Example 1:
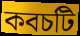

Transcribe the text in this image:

কবচটি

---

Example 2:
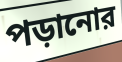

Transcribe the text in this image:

পড়ানোর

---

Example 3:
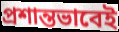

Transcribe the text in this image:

প্রশান্তভাবেই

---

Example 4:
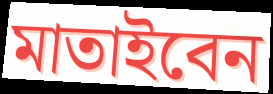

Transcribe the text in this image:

মাতাইবেন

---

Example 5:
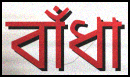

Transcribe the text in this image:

বাঁধা